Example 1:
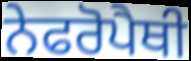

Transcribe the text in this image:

ਨੇਫਰੋਪੈਥੀ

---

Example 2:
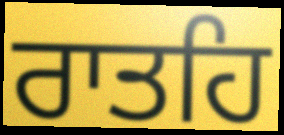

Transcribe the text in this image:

ਰਾਤਹਿ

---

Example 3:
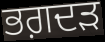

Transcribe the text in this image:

ਭਗ਼ਦੜ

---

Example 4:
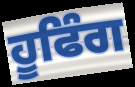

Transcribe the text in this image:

ਹੂਫਿੰਗ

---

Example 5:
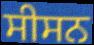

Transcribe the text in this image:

ਸੀਸਨ